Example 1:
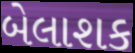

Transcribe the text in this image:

બેલાશક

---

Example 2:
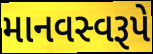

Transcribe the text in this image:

માનવસ્વરૂપે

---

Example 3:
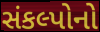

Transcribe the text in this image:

સંકલ્પોનો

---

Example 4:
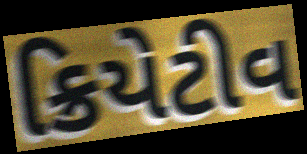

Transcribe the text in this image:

ક્રિયેટીવ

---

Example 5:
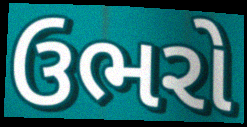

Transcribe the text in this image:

ઉભરો